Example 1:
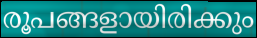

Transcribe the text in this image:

രൂപങ്ങളായിരിക്കും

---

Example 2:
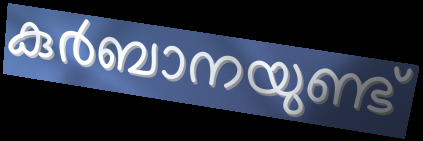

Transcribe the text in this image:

കുർബാനയുണ്ട്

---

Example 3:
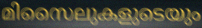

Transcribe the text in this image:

മിസൈലുകളുടെയും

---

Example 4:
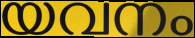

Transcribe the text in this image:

യവനം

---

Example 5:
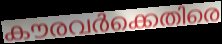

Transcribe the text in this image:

കൗരവർക്കെതിരെ